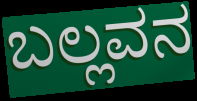
ಬಲ್ಲವನ